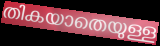
തികയാതെയുള്ള